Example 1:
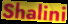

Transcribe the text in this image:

Shalini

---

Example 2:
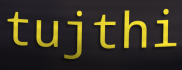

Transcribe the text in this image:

tujthi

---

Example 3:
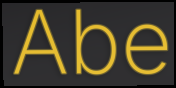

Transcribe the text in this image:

Abe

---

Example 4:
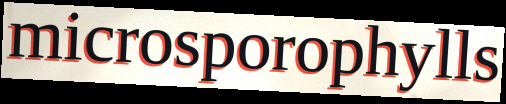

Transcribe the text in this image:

microsporophylls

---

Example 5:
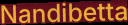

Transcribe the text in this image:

Nandibetta